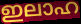
ഇലാഹ